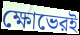
ক্ষোভেরই